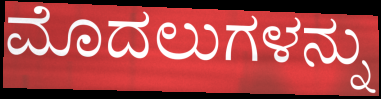
ಮೊದಲುಗಳನ್ನು